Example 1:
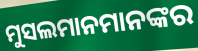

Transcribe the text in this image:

ମୁସଲମାନମାନଙ୍କର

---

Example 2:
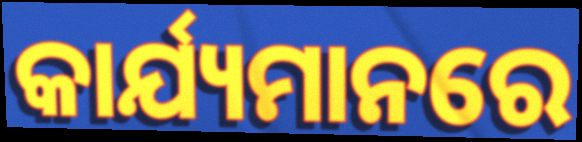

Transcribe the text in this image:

କାର୍ଯ୍ୟମାନରେ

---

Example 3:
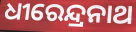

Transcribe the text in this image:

ଧୀରେନ୍ଦ୍ରନାଥ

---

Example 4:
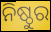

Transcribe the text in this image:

ନିଷ୍ଠୁର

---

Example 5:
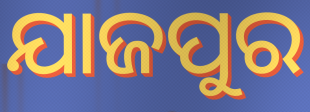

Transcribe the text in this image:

ଯାଜପୁର